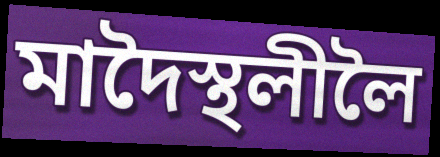
মাদৈস্থলীলৈ